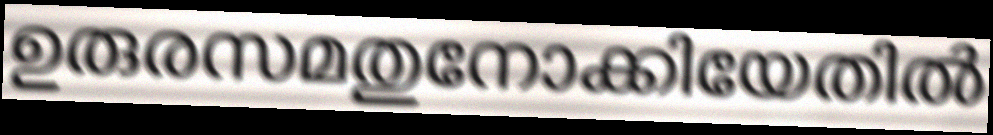
ഉരുരസമതുനോക്കിയേതിൽ